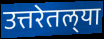
उत्तरेतल्या